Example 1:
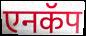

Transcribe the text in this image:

एनकॅप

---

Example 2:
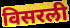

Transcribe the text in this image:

विसरली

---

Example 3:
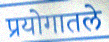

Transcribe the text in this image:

प्रयोगातले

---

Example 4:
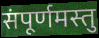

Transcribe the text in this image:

संपूर्णमस्तु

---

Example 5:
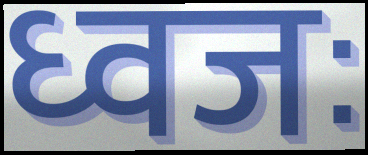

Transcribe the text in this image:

ध्वजः